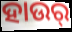
ହାଉର୍